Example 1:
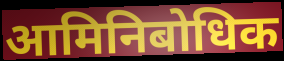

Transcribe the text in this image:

आमिनिबोधिक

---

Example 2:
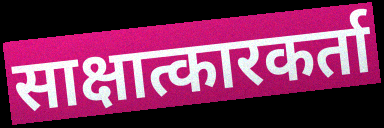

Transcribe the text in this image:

साक्षात्कारकर्ता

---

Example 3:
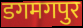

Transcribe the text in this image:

डगमगपुर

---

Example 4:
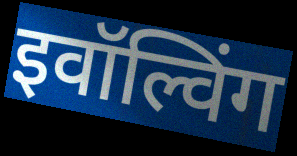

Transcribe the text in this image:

इवॉल्विंग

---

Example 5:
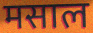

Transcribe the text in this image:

मसाल